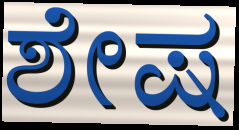
ಶೇಷ